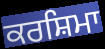
ਕਰਸ਼ਿਮਾ